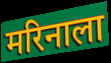
मरिनाला